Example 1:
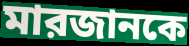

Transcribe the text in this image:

মারজানকে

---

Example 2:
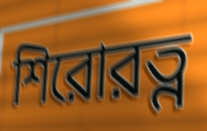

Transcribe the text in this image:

শিরোরত্ন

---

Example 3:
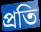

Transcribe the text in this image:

প্রতি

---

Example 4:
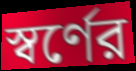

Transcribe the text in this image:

স্বর্ণের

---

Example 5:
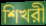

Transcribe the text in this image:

শিখরী